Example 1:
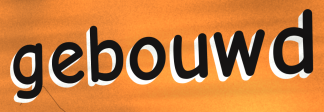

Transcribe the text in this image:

gebouwd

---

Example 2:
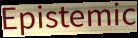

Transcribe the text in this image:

Epistemic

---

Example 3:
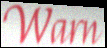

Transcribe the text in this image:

Warn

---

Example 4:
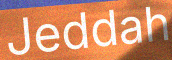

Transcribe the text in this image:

Jeddah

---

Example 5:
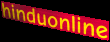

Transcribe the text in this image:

hinduonline